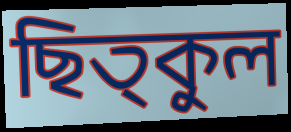
ছিত্কুল